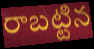
రాబట్టిన